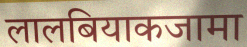
लालबियाकजामा